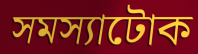
সমস্যাটোক